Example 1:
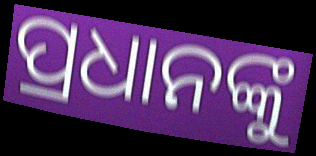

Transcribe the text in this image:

ପ୍ରଧାନଙ୍କୁ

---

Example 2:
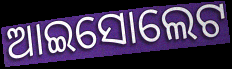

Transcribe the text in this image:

ଆଇସୋଲେଟ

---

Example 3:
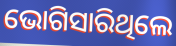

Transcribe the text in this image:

ଭୋଗିସାରିଥିଲେ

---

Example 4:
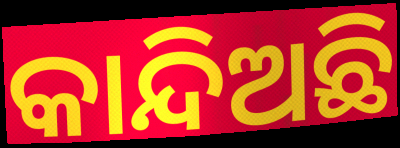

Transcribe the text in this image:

କାନ୍ଦିଅଛି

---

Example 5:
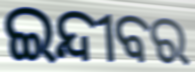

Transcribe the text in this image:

ଇନ୍ଦୀବର